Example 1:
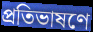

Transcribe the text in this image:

প্রতিভাষণে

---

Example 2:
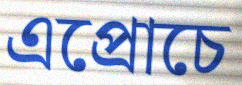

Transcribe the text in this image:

এপ্রোচে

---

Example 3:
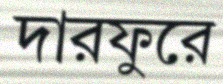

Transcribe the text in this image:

দারফুরে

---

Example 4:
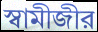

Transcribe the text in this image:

স্বামীজীর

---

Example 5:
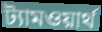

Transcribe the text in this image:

ট্যামওয়ার্থ